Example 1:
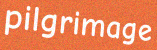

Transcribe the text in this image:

pilgrimage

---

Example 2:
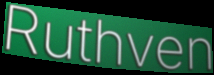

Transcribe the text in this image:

Ruthven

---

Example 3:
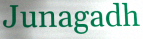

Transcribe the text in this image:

Junagadh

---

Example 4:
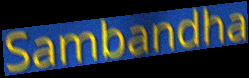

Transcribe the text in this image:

Sambandha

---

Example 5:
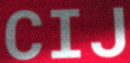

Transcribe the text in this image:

CIJ